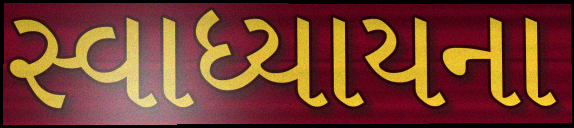
સ્વાધ્યાયના